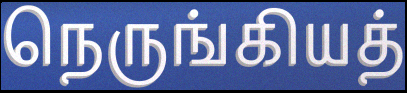
நெருங்கியத்